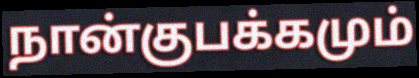
நான்குபக்கமும்